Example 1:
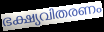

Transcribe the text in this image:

ഭക്ഷ്യവിതരണം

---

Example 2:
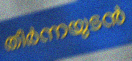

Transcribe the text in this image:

തീർന്നയുടൻ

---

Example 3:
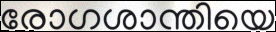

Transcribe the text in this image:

രോഗശാന്തിയെ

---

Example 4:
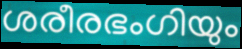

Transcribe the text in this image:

ശരീരഭംഗിയും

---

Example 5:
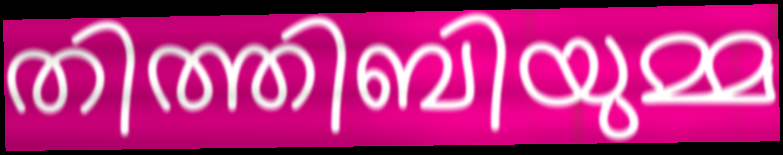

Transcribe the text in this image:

തിത്തിബിയുമ്മ